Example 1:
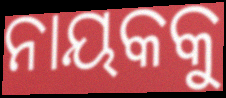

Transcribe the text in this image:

ନାୟକକୁ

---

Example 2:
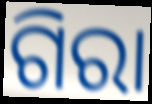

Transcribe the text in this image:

ଗିରା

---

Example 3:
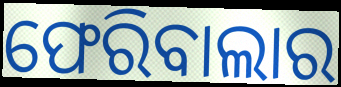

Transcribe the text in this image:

ଫେରିବାଲାର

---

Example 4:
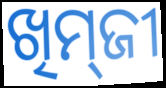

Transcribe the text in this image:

ଖିମ୍‌ଜୀ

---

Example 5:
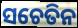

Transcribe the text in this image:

ସଚେତିନ